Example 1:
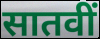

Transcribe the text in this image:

सातवीं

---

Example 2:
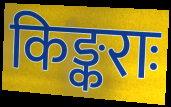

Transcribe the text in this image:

किङ्कराः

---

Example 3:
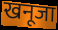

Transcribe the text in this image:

खनूजा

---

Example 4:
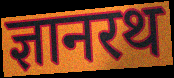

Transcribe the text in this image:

ज्ञानरथ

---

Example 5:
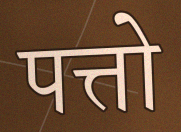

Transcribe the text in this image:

पत्तो